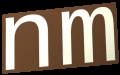
nm